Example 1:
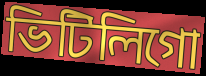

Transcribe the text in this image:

ভিটিলিগো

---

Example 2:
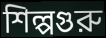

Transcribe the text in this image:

শিল্পগুরু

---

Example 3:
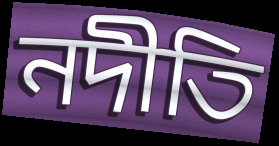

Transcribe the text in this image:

নদীতি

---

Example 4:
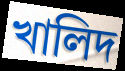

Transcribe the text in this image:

খালিদ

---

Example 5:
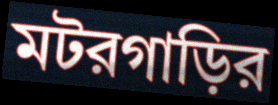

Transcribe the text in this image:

মটরগাড়ির